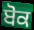
ਬੋਕ